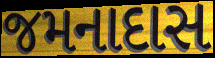
જમનાદાસ